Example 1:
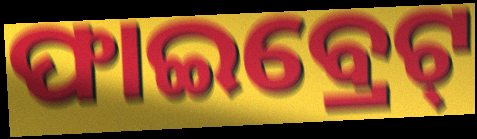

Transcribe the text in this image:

ଫାଇବ୍ରେଟ୍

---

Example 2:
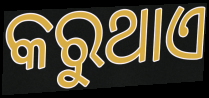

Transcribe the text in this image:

କରୁଥାଏ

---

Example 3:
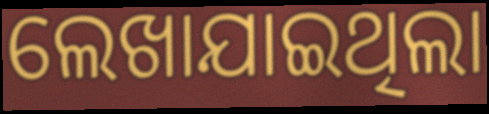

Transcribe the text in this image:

ଲେଖାଯାଇଥିଲା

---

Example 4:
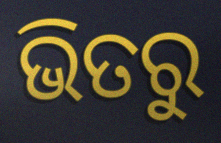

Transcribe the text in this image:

ଭିତରୁ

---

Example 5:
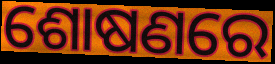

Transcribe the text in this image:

ଶୋଷଣରେ